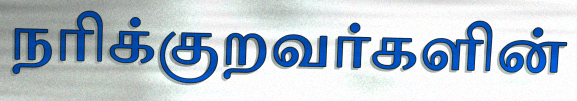
நரிக்குறவர்களின்